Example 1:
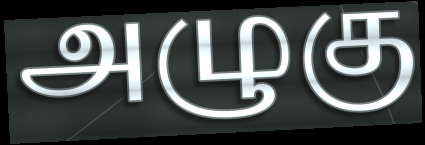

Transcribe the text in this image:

அழுகு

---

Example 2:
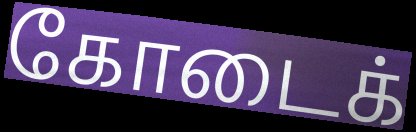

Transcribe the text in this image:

கோடைக்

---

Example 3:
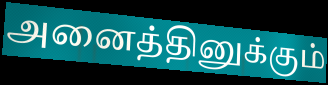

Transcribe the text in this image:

அனைத்தினுக்கும்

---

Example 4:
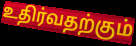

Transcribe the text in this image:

உதிர்வதற்கும்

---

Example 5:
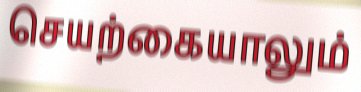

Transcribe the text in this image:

செயற்கையாலும்